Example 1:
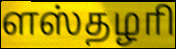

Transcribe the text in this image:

ளஸ்தழரி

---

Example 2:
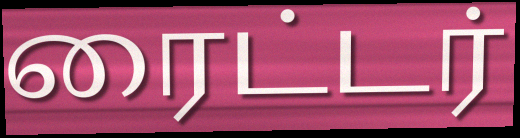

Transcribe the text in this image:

ரைட்டர்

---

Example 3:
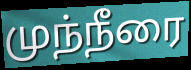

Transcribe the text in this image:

முந்நீரை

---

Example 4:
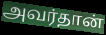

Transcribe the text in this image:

அவர்தான்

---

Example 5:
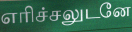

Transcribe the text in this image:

எரிச்சலுடனே